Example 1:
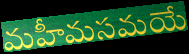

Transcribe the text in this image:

మహీమసమయే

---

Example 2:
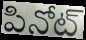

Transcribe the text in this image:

పినోట్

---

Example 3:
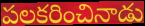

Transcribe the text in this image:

పలకరించినాడు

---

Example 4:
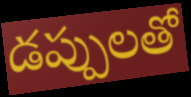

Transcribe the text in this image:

డప్పులతో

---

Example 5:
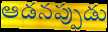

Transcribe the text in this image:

ఆడనప్పుడు